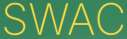
SWAC